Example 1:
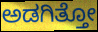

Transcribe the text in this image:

ಅಡಗಿತ್ತೋ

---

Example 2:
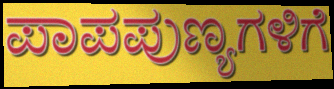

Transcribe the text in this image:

ಪಾಪಪುಣ್ಯಗಳಿಗೆ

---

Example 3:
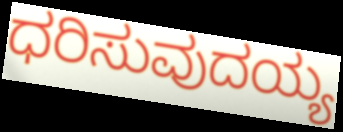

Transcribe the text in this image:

ಧರಿಸುವುದಯ್ಯ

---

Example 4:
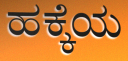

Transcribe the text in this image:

ಹಕ್ಕೆಯ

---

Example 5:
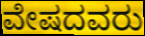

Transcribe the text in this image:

ವೇಷದವರು